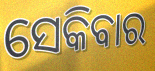
ସେକିବାର